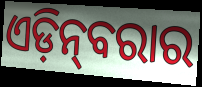
ଏଡ଼ିନ୍‍ବରାର